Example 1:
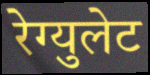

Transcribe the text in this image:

रेग्‍युलेट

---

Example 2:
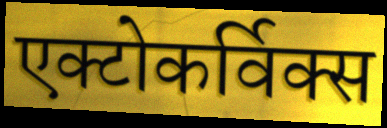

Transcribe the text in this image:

एक्टोकर्विक्स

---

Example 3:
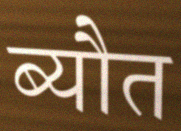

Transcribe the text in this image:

ब्यौत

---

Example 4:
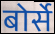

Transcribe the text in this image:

बोर्से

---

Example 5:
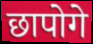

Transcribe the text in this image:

छापोगे